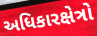
અધિકારક્ષેત્રો